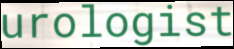
urologist